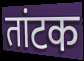
तांटक